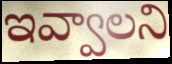
ఇవ్వాలని